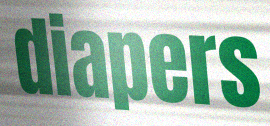
diapers